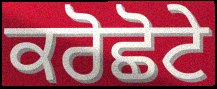
ਕਰੋਛੋਟੇ